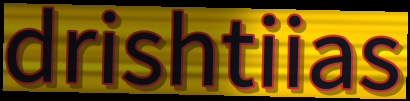
drishtiias